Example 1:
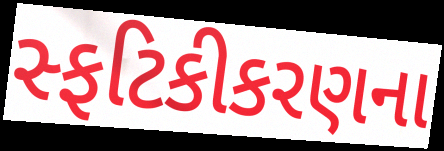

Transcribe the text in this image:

સ્ફટિકીકરણના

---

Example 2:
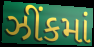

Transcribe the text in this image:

ઝીંકમાં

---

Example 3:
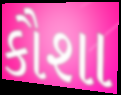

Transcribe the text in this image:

કૌશા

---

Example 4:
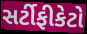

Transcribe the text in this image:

સર્ટીફીકેટો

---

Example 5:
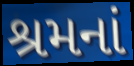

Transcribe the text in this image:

શ્રમનાં